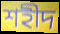
শহীদ